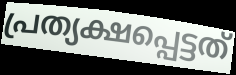
പ്രത്യക്ഷപ്പെട്ടത്